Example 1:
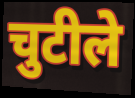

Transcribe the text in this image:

चुटीले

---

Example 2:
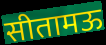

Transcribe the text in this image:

सीतामऊ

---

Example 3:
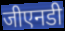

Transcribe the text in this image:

जीएनडी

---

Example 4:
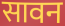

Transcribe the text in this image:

सावन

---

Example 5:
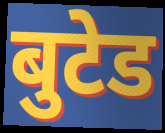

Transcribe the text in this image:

बुटेड